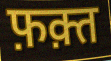
फ़क़्त